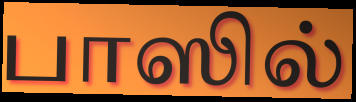
பாஸில்